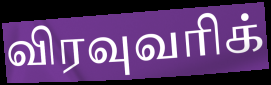
விரவுவரிக்